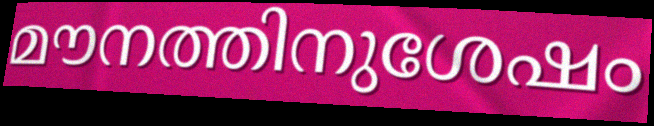
മൗനത്തിനുശേഷം